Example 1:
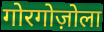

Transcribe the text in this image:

गोरगोज़ोला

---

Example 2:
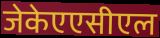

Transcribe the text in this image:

जेकेएएसीएल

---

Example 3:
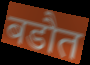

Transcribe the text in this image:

बडौत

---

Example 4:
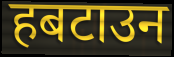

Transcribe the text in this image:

हबटाउन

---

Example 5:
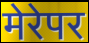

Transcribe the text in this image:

मेरेपर